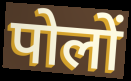
पोलों